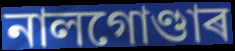
নালগোণ্ডাৰ